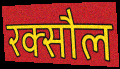
रक्‍सौल